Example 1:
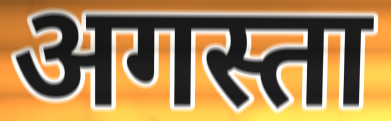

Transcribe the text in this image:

अगस्ता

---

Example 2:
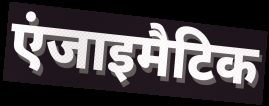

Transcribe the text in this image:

एंजाइमैटिक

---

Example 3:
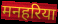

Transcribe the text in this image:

मनहरिया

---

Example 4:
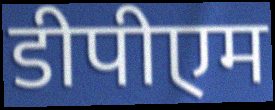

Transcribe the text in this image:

डीपीएम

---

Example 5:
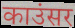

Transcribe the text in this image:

काउंसर